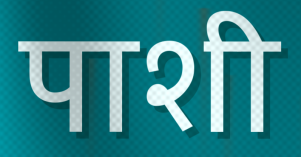
पाशी